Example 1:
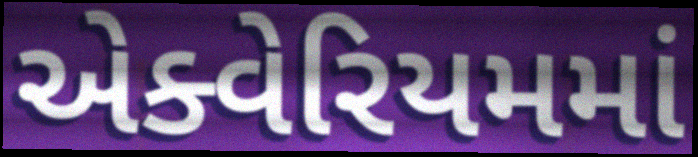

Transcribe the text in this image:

એક્વેરિયમમાં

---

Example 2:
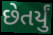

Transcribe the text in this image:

છેતર્યું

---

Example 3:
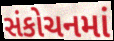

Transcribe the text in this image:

સંકોચનમાં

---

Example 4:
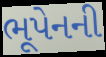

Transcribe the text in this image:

ભૂપેનની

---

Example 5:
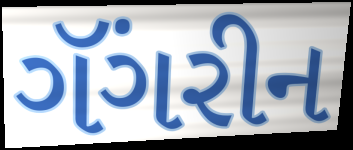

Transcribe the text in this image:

ગૅંગરીન